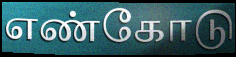
எண்கோடு